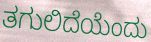
ತಗುಲಿದೆಯೆಂದು